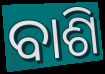
ବାଶି